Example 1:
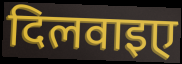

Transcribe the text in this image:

दिलवाइए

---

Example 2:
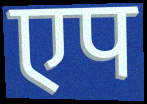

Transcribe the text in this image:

एप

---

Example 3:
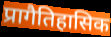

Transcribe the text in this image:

प्रागैतिहासिक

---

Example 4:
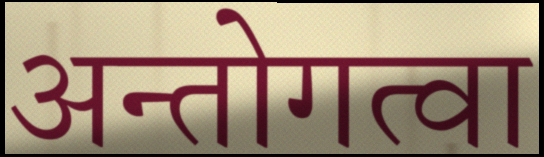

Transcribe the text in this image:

अन्तोगत्वा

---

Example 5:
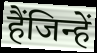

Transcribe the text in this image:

हैंजिन्हें